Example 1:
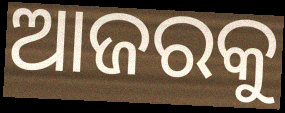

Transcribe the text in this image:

ଆଜରକୁ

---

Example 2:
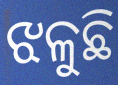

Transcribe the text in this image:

ଝଳୁଛି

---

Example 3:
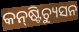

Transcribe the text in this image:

କନ୍‍ଷ୍ଟିଚ୍ୟୁସନ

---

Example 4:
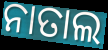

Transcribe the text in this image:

ନାତାଲ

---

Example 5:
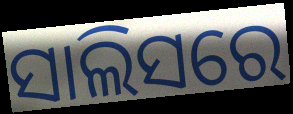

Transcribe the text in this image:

ସାଲିସରେ